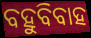
ବହୁବିବାହ